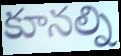
కూనల్ని